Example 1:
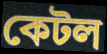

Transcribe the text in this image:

কেটল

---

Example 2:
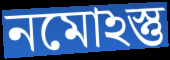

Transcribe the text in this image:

নমোঽস্তু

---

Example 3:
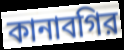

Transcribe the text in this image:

কানাবগির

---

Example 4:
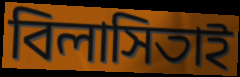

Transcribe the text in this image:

বিলাসিতাই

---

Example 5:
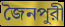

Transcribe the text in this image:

জৈনপুরী